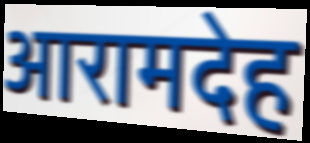
आरामदेह